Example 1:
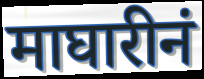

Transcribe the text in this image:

माघारीनं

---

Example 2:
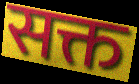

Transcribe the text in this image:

सक्त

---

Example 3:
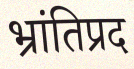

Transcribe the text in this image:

भ्रांतिप्रद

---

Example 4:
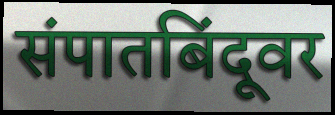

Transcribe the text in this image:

संपातबिंदूवर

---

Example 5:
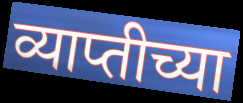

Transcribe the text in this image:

व्याप्तीच्या